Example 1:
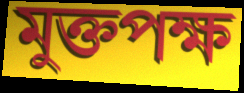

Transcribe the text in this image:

মুক্তপক্ষ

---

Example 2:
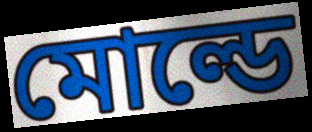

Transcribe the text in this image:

মোল্ডে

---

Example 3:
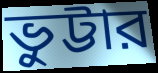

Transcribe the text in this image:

ভুট্টার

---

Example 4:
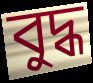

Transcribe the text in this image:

বুদ্ধ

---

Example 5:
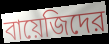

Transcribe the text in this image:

বায়েজিদের